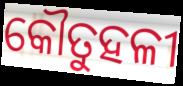
କୌତୁହଳୀ